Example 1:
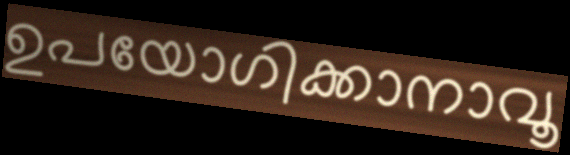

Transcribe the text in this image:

ഉപയോഗിക്കാനാവൂ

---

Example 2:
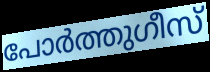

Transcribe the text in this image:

പോർത്തുഗീസ്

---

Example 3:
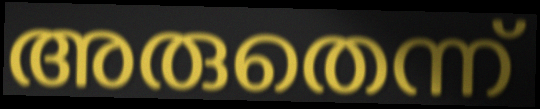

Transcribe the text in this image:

അരുതെന്ന്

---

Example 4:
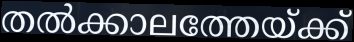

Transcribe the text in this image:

തൽക്കാലത്തേയ്ക്ക്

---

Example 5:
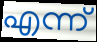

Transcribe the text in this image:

എന്ന്